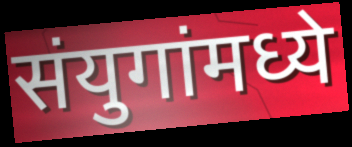
संयुगांमध्ये